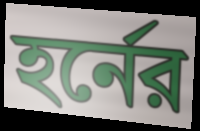
হর্নের